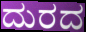
ದುರದ